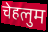
चेहलुम